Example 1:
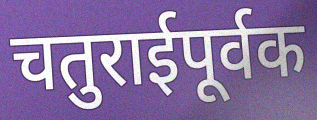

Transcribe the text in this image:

चतुराईपूर्वक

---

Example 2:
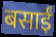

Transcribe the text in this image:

बसाईं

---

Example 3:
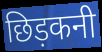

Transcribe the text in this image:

छिड़कनी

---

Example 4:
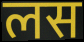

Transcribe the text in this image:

लस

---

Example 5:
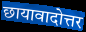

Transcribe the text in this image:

छायावादोत्तर